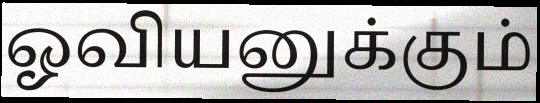
ஓவியனுக்கும்